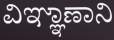
ವಿಞ್ಞಾಣಾನಿ